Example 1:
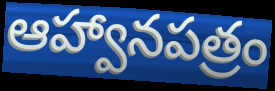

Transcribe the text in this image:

ఆహ్వానపత్రం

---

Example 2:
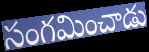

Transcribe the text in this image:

సంగమించాడు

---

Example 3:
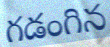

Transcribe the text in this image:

గడంగిన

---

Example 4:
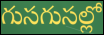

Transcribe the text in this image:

గుసగుసల్లో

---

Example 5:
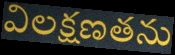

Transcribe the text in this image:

విలక్షణతను